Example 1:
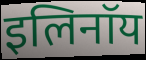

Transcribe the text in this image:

इलिनॉय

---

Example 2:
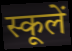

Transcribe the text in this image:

स्कूलें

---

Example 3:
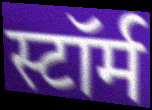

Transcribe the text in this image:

स्टॉर्म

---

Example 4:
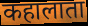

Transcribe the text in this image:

कहालाता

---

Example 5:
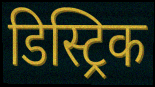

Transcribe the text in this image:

डिस्ट्रिक